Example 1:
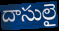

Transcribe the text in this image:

దాసులై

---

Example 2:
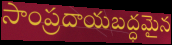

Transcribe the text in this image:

సాంప్రదాయబద్ధమైన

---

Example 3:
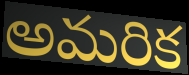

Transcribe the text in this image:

అమరిక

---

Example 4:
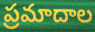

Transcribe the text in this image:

ప్రమాదాల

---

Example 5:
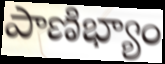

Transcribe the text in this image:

పాణిభ్యాం